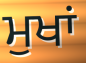
ਮੁਖਾਂ